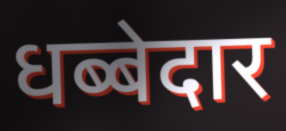
धब्बेदार